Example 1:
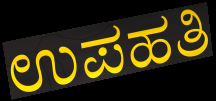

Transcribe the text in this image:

ಉಪಹತಿ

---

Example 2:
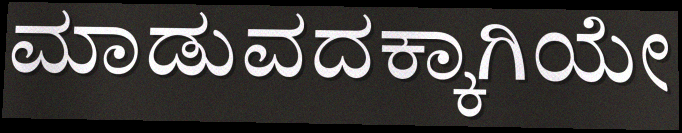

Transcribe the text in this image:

ಮಾಡುವದಕ್ಕಾಗಿಯೇ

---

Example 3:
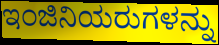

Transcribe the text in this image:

ಇಂಜಿನಿಯರುಗಳನ್ನು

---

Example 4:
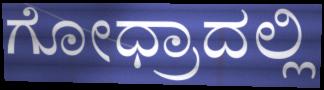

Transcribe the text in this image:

ಗೋಧ್ರಾದಲ್ಲಿ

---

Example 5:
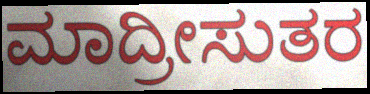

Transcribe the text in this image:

ಮಾದ್ರೀಸುತರ